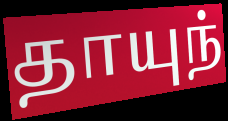
தாயுந்